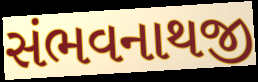
સંભવનાથજી